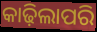
କାଢ଼ିଲାପରି